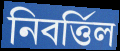
নিবর্ত্তিল